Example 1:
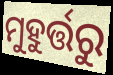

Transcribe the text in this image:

ମୁହୁର୍ତ୍ତରୁ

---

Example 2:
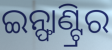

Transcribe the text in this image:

ଇନ୍ଫାଣ୍ଟ୍ରିର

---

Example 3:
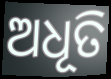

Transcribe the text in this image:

ଅଧୂତି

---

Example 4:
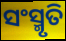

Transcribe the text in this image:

ସଂସ୍ମୃତି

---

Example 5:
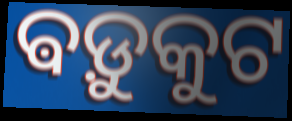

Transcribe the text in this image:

ଵଡ଼ୁକୁଟ